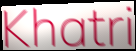
Khatri